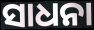
ସାଧନା